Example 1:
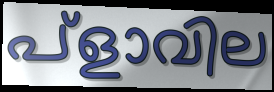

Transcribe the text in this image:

പ്ളാവില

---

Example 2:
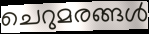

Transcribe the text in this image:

ചെറുമരങ്ങൾ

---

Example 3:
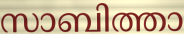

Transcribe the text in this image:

സാബിത്താ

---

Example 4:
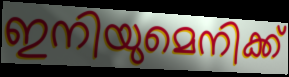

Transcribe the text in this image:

ഇനിയുമെനിക്ക്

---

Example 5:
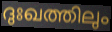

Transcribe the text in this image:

ദുഃഖത്തിലും